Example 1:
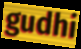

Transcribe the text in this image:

gudhi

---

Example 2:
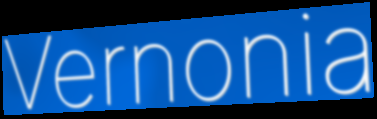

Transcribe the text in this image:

Vernonia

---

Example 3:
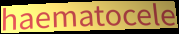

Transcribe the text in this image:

haematocele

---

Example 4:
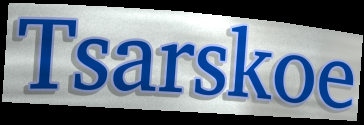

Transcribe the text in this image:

Tsarskoe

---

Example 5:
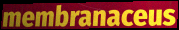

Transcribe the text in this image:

membranaceus